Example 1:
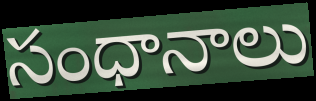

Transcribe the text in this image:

సంధానాలు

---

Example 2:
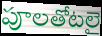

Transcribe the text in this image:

పూలతోటలై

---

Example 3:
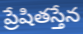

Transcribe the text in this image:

ప్రేషితస్తేన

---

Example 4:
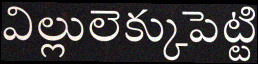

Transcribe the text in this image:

విల్లులెక్కుపెట్టి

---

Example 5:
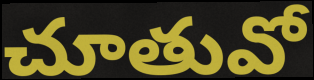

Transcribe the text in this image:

చూతువో